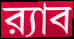
র‍্যাব